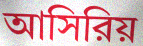
আসিরিয়